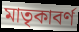
মাতৃকাবর্ণ